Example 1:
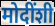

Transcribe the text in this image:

मोदींशी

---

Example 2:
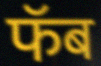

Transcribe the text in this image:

फॅब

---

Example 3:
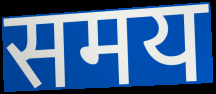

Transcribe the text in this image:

समय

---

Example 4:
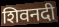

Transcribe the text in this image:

शिवनदी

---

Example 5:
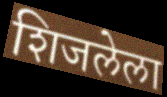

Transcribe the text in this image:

शिजलेला